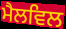
ਮੈਲਵਿਲ